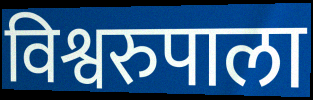
विश्वरुपाला